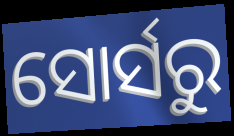
ସୋର୍ସରୁ